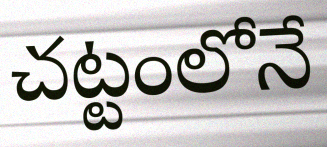
చట్టంలోనే